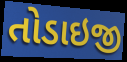
તોડાઇજી